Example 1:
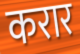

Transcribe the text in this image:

करार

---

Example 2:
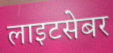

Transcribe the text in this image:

लाइटसेबर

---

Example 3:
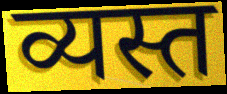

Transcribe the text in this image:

व्यस्त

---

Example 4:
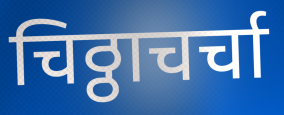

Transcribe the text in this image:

चिठ्ठाचर्चा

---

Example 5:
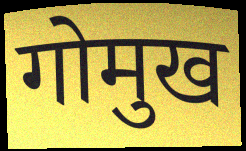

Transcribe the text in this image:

गोमुख